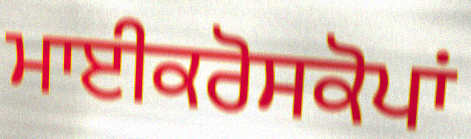
ਮਾਈਕਰੋਸਕੋਪਾਂ